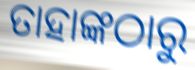
ତାହାଙ୍କଠାରୁ